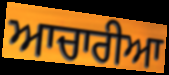
ਆਚਾਰੀਆ